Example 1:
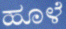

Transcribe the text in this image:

ಹೂಳೆ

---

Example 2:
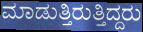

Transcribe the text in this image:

ಮಾಡುತ್ತಿರುತ್ತಿದ್ದರು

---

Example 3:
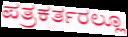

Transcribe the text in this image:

ಪತ್ರಕರ್ತರಲ್ಲೂ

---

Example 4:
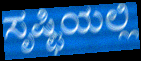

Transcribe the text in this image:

ಸೃಷ್ಟಿಯಲ್ಲಿ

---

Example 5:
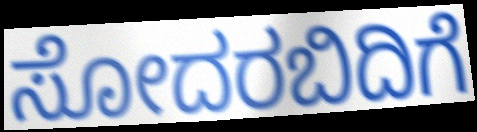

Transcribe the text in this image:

ಸೋದರಬಿದಿಗೆ